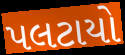
પલટાયો